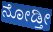
ನೋಡ್ತೀ